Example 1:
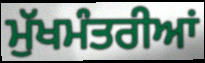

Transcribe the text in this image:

ਮੁੱਖਮੰਤਰੀਆਂ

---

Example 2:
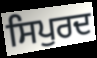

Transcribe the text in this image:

ਸਿਪੁਰਦ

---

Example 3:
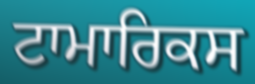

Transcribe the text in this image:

ਟਾਮਾਰਿਕਸ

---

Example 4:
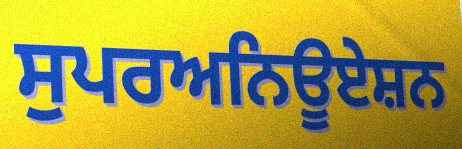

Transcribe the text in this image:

ਸੁਪਰਅਨਿਊਏਸ਼ਨ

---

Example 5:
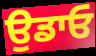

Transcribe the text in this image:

ਉਡਾਓ